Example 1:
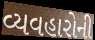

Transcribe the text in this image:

વ્યવહારોની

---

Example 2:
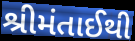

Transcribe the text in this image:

શ્રીમંતાઈથી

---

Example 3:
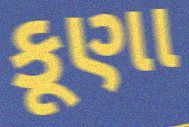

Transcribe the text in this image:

કૂણા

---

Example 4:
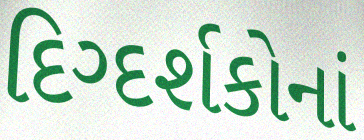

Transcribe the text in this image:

દિગ્દર્શકોનાં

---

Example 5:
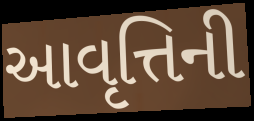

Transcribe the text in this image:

આવૃત્તિની